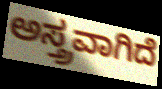
ಅಸ್ತ್ರವಾಗಿದೆ